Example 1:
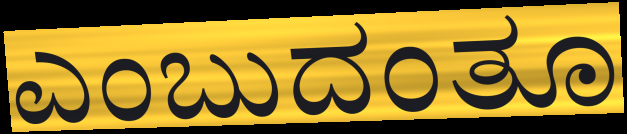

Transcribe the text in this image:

ಎಂಬುದಂತೂ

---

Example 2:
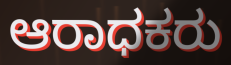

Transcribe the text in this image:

ಆರಾಧಕರು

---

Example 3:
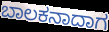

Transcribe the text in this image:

ಬಾಲಕನಾದಾಗ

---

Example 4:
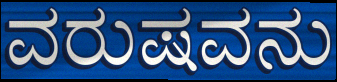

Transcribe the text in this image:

ವರುಷವನು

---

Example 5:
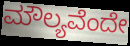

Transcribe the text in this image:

ಮೌಲ್ಯವೆಂದೇ